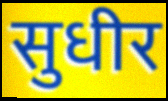
सुधीर